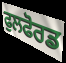
ਫੁਲਫੋਰਡ